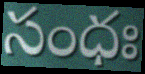
సంధః